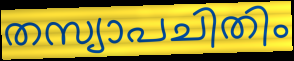
തസ്യാപചിതിം